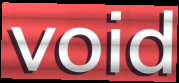
void